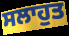
ਸਲਾਹੁਤ